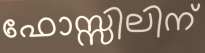
ഫോസ്സിലിന്